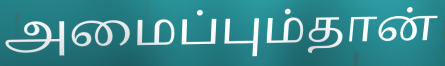
அமைப்பும்தான்